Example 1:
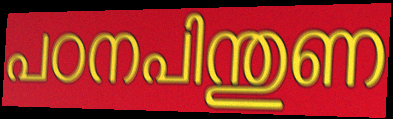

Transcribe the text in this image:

പഠനപിന്തുണ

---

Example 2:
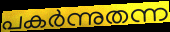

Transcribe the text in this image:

പകർന്നുതന്ന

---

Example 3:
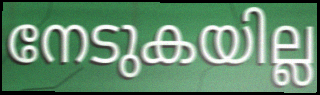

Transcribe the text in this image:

നേടുകയില്ല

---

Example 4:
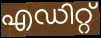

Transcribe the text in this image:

എഡിറ്റ്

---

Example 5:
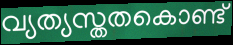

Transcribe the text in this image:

വ്യത്യസ്തതകൊണ്ട്